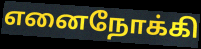
எனைநோக்கி